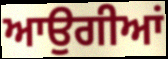
ਆਉਗੀਆਂ